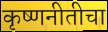
कृष्णनीतीचा